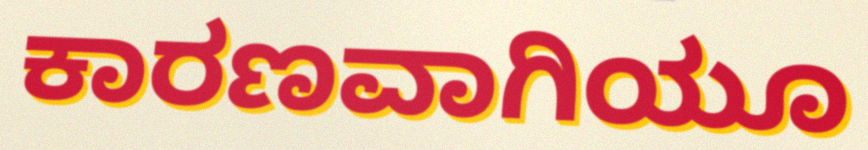
ಕಾರಣವಾಗಿಯೂ